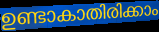
ഉണ്ടാകാതിരിക്കാം